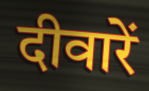
दीवारें